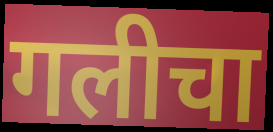
गलीचा